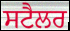
ਸਟੈਲਰ